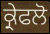
ਕ੍ਰੇਫਲੋ